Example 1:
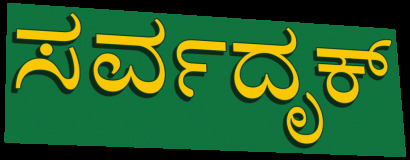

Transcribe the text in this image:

ಸರ್ವದೃಕ್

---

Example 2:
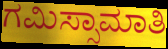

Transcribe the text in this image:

ಗಮಿಸ್ಸಾಮಾತಿ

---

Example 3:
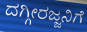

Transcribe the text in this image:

ದಗ್ಗೀರಜ್ಜನಿಗೆ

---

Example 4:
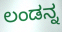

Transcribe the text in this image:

ಲಂಡನ್ನ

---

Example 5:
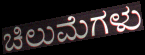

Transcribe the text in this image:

ಚಿಲುಮೆಗಳು